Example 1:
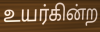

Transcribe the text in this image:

உயர்கின்ற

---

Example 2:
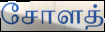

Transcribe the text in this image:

சோளத்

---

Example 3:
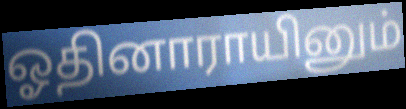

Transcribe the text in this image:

ஓதினாராயினும்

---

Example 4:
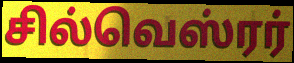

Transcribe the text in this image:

சில்வெஸ்ரர்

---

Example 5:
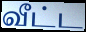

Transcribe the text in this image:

வீட்ட